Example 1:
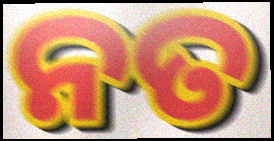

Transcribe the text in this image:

ନତ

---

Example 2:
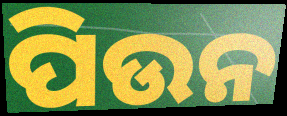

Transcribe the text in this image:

ପିଉନ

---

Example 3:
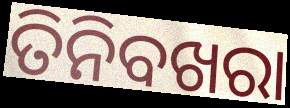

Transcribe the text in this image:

ତିନିବଖରା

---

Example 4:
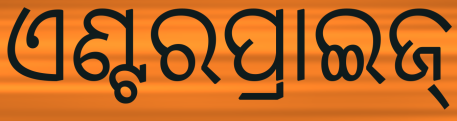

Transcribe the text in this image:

ଏଣ୍ଟରପ୍ରାଇଜ୍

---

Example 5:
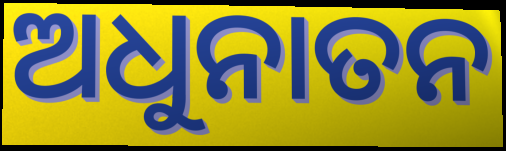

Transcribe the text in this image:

ଅଧୁନାତନ